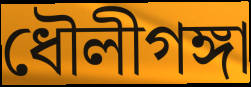
ধৌলীগঙ্গা